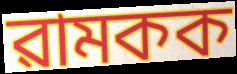
ৱামকক